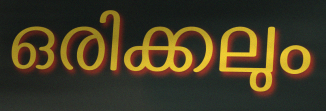
ഒരിക്കലും